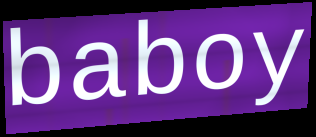
baboy